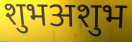
शुभअशुभ